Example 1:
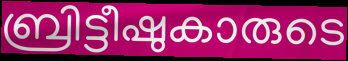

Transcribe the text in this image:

ബ്രിട്ടീഷുകാരുടെ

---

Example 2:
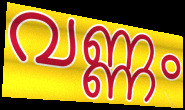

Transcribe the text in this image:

വണ്ണം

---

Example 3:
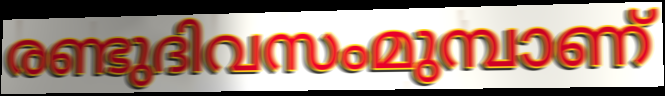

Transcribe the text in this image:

രണ്ടുദിവസംമുമ്പാണ്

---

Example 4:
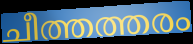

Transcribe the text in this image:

ചീത്തത്തരം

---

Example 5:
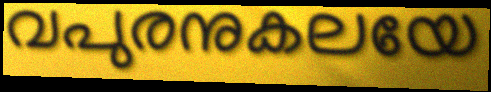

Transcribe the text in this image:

വപുരനുകലയേ